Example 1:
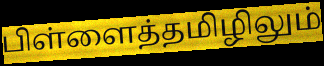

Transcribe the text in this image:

பிள்ளைத்தமிழிலும்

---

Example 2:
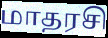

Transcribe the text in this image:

மாதரசி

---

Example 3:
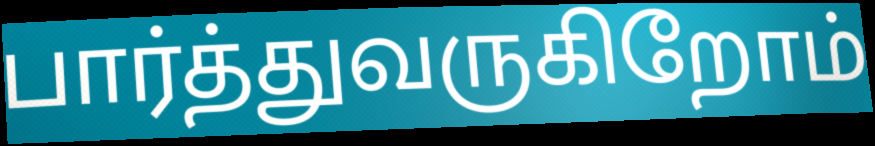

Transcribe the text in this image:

பார்த்துவருகிறோம்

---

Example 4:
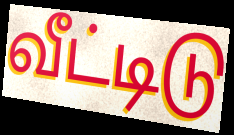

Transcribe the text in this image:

வீட்டிடு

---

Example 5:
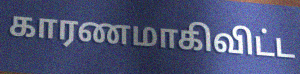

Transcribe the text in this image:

காரணமாகிவிட்ட